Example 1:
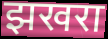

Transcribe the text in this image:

झखरा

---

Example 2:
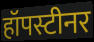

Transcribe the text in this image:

हॉपस्टीनर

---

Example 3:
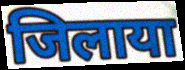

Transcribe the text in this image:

जिलाया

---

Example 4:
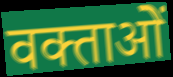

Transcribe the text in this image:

वक्ताओें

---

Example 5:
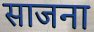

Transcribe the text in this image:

साजना